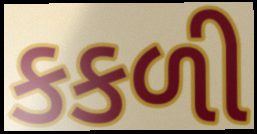
કકળી